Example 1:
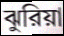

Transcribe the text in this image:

ঝুরিয়া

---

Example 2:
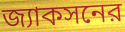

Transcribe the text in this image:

জ্যাকসনের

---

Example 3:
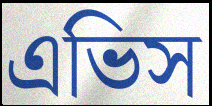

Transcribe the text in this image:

এভিস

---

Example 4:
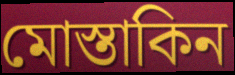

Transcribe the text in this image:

মোস্তাকিন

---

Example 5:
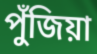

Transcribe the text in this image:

পুঁজিয়া